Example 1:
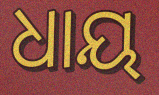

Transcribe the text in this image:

ଧାୟ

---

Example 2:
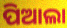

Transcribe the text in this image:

ପିଆଲା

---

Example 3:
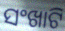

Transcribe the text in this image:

ସଂଖାଟି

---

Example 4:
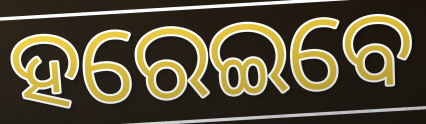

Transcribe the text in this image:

ହରେଇବେ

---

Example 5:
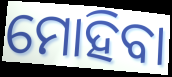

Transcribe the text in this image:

ମୋହିବା